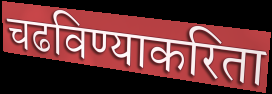
चढविण्याकरिता